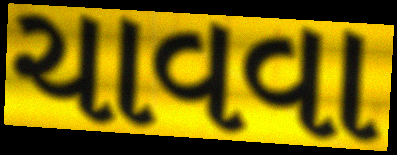
ચાવવા